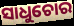
ସାଧୁଚୋର